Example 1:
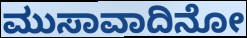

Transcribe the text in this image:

ಮುಸಾವಾದಿನೋ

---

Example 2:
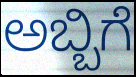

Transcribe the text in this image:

ಅಬ್ಬಿಗೆ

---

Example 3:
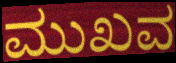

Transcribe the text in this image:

ಮುಖವ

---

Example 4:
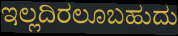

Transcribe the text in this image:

ಇಲ್ಲದಿರಲೂಬಹುದು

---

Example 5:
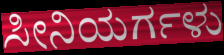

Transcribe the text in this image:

ಸೀನಿಯರ್ಗಳು